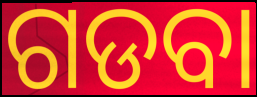
ଗଡବା